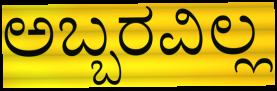
ಅಬ್ಬರವಿಲ್ಲ